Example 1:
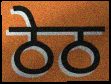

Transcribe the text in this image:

ਠੇਠ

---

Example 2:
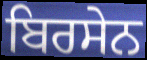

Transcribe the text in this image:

ਬਿਰਸੇਨ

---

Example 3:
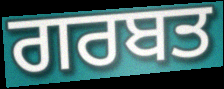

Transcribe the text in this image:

ਗਰਬਤ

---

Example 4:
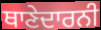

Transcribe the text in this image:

ਥਾਣੇਦਾਰਨੀ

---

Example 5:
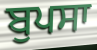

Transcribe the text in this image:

ਬੁਪਸਾ